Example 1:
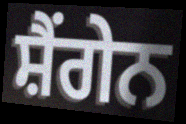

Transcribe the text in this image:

ਸ਼ੈਂਗੇਨ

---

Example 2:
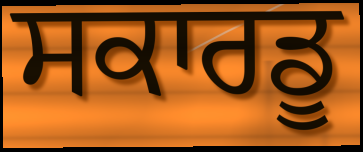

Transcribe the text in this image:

ਸਕਾਰਡੂ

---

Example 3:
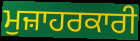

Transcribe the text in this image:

ਮੁਜ਼ਾਹਰਕਾਰੀ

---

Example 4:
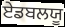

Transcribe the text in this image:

ਏਡਬਲਯੂ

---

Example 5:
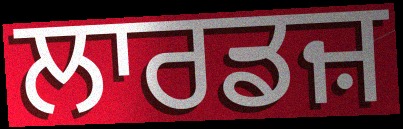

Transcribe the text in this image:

ਲਾਰਡਜ਼